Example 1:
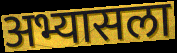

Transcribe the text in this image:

अभ्यासला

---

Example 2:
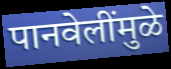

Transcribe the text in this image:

पानवेलींमुळे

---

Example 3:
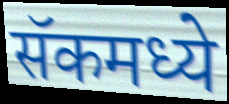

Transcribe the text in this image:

सॅकमध्ये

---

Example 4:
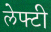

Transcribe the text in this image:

लेफ्टी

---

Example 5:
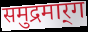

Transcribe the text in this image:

समुद्रमार्ग